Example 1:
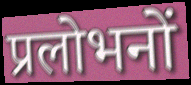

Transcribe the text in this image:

प्रलोभनों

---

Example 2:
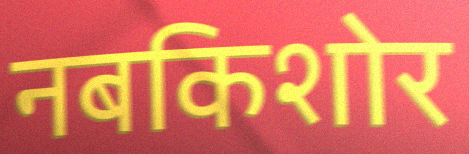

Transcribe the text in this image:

नबकिशोर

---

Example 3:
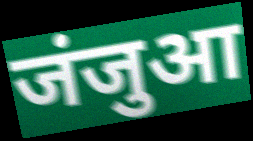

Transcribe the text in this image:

जंजुआ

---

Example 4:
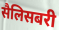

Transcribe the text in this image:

सैलिसबरी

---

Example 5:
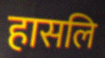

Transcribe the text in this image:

हासलि